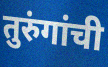
तुरुंगांची